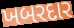
ખબરદાર